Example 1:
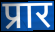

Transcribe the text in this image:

प्रार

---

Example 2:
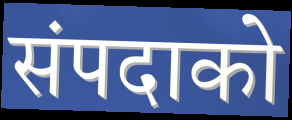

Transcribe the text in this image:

संपदाको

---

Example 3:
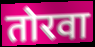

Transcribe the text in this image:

तोरवा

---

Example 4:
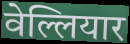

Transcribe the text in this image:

वेल्लियार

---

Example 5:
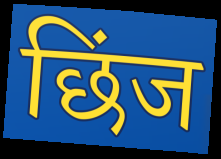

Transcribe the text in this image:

छिंज